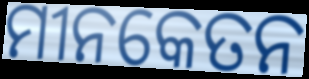
ମୀନକେତନ